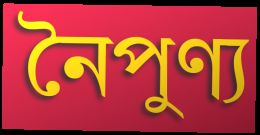
নৈপুণ্য